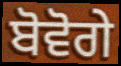
ਬੋਵੋਗੇ